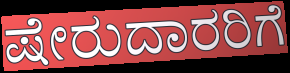
ಷೇರುದಾರರಿಗೆ